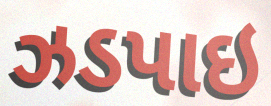
ઝડપાઇ